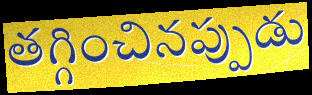
తగ్గించినప్పుడు